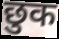
छुक